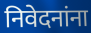
निवेदनांना